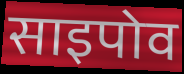
साइपोव